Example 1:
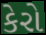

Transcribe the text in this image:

કેરો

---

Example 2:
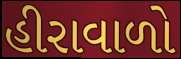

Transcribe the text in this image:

હીરાવાળો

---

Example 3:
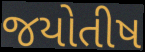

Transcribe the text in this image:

જયોતીષ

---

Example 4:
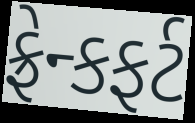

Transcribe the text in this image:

ફ્રેન્કફર્ટ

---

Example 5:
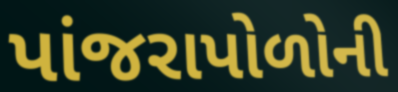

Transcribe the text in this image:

પાંજરાપોળોની